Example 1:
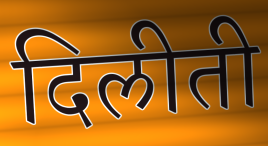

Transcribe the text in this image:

दिलीती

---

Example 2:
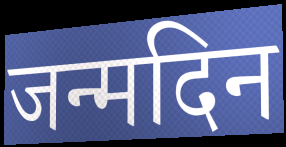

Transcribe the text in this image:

जन्मदिन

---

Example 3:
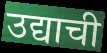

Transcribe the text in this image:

उद्याची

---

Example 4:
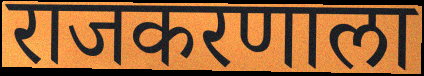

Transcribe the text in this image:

राजकरणाला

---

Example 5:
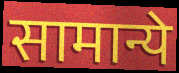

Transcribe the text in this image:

सामान्ये